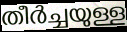
തീർച്ചയുള്ള